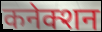
कनेक्शन